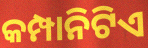
କମ୍ପାନିଟିଏ